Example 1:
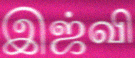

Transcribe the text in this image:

இஜ்வி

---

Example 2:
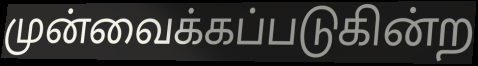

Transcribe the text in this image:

முன்வைக்கப்படுகின்ற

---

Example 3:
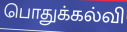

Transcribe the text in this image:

பொதுக்கல்வி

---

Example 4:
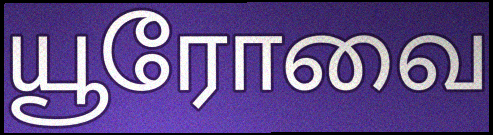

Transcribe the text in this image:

யூரோவை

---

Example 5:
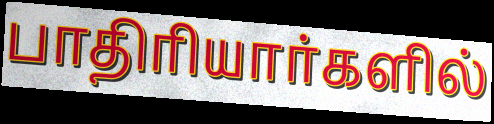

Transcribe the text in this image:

பாதிரியார்களில்